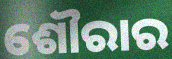
ଶୌରାର